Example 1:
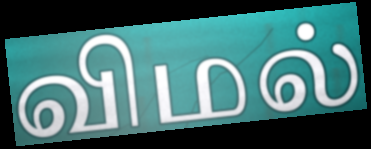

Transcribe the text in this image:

விமல்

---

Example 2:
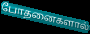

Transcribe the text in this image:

போதனைகளால்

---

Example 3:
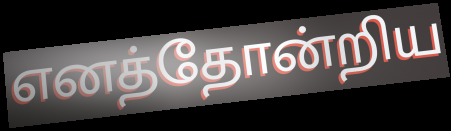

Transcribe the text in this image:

எனத்தோன்றிய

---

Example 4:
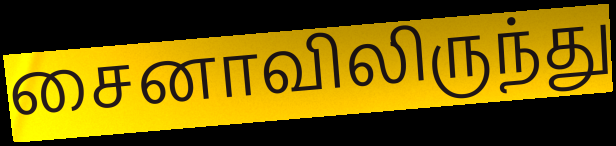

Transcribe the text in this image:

சைனாவிலிருந்து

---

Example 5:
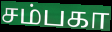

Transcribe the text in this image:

சம்பகா